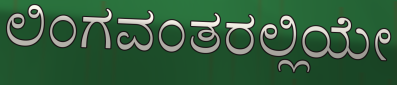
ಲಿಂಗವಂತರಲ್ಲಿಯೇ